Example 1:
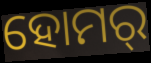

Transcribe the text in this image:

ହୋମର୍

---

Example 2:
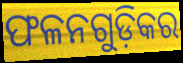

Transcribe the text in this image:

ଫଳନଗୁଡ଼ିକର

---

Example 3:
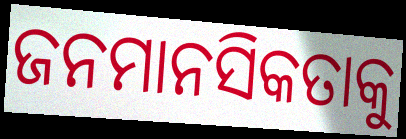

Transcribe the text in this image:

ଜନମାନସିକତାକୁ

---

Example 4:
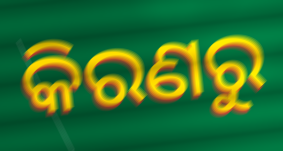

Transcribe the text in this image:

କିରଣରୁ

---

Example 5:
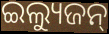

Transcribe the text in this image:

ଇଲ୍ୟୁଜନ୍